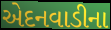
એદનવાડીના